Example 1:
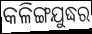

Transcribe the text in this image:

କଳିଙ୍ଗଯୁଦ୍ଧର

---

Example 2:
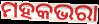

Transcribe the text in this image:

ମହକଭରା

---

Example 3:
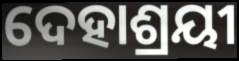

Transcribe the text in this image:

ଦେହାଶ୍ରୟୀ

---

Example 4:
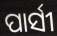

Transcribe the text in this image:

ପାର୍ସୀ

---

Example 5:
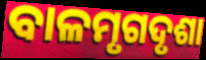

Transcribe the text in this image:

ବାଳମୃଗଦୃଶା